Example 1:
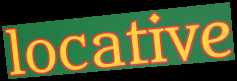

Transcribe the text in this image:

locative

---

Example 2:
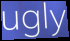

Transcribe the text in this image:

ugly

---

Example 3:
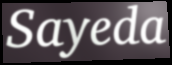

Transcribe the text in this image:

Sayeda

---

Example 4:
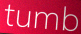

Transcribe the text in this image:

tumb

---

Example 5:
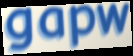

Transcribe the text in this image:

gapw